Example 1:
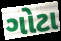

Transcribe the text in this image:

ગોટા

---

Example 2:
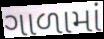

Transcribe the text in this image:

ગાળામાં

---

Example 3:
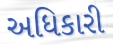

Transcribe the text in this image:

અધિકારી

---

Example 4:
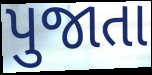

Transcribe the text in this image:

પુજાતા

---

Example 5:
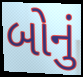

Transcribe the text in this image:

બોનું